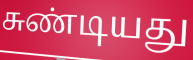
சுண்டியது